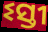
ଽସ୍ତୀ